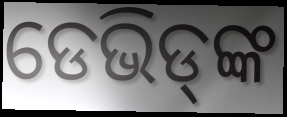
ଡେଭିଡ୍‌ଙ୍କ